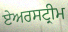
ਏਅਰਸਟ੍ਰੀਮ